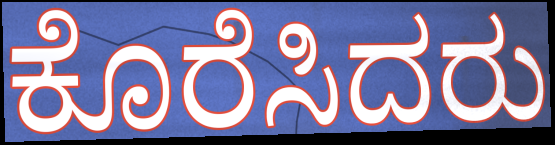
ಕೊರೆಸಿದರು